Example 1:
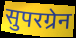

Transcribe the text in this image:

सुपरग्रेन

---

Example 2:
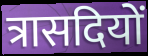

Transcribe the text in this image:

त्रासदियों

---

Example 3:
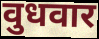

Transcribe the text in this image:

वुधवार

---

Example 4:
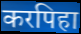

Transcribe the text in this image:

करपिहा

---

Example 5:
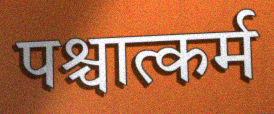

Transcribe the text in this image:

पश्चात्कर्म